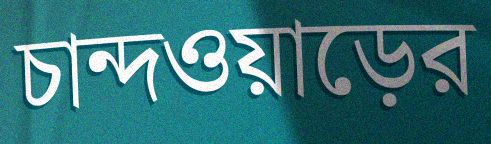
চান্দওয়াড়ের